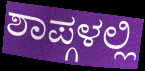
ಶಾಪ್ಗಳಲ್ಲಿ